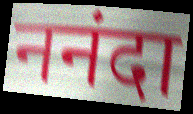
ननंदा